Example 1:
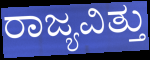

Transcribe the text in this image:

ರಾಜ್ಯವಿತ್ತು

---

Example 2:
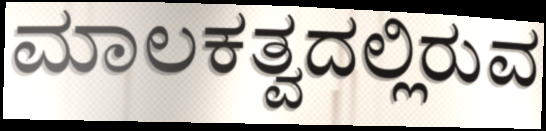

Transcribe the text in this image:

ಮಾಲಕತ್ವದಲ್ಲಿರುವ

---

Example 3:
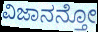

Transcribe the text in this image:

ವಿಜಾನನ್ತೋ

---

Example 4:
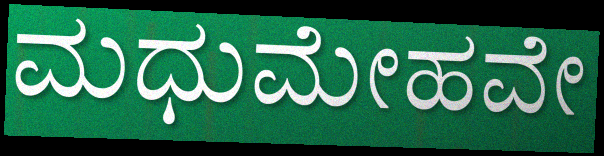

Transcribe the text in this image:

ಮಧುಮೇಹವೇ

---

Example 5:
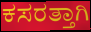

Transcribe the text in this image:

ಕಸರತ್ತಾಗಿ